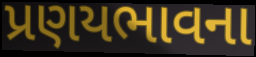
પ્રણયભાવના